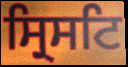
ਸ੍ਰਿਸਟਿ